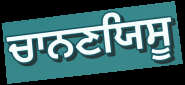
ਚਾਨਣਯਿਸੂ